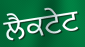
ਲੈਕਟੇਟ